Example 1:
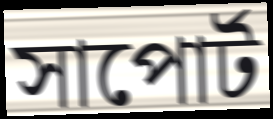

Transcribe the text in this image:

সাপোর্ট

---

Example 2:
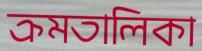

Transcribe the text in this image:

ক্রমতালিকা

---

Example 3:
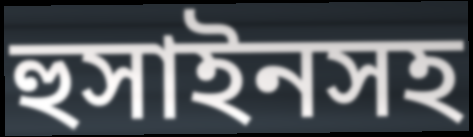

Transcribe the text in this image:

হুসাইনসহ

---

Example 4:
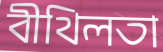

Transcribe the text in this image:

বীথিলতা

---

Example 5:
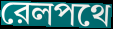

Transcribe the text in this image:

রেলপথে